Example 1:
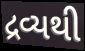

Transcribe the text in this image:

દ્રવ્યથી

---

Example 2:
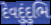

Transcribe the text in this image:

દેવદુંદુભિ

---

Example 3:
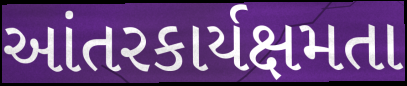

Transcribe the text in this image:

આંતરકાર્યક્ષમતા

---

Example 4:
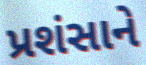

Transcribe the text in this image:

પ્રશંસાને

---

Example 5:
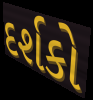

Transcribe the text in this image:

દર્શકો